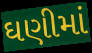
ઘણીમાં